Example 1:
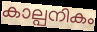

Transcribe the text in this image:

കാല്പനികം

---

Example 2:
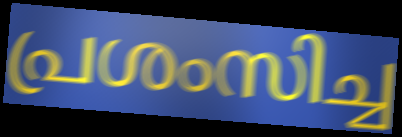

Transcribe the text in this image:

പ്രശംസിച്ച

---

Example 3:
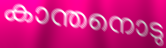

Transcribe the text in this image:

കാന്തനൊടു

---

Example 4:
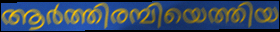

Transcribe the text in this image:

ആർത്തിരമ്പിയെത്തിയ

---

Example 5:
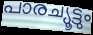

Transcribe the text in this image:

പാരച്യൂട്ടും